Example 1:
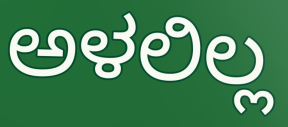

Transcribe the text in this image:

ಅಳಲಿಲ್ಲ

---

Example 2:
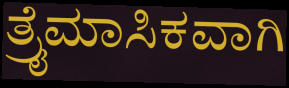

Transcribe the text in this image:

ತ್ರೈಮಾಸಿಕವಾಗಿ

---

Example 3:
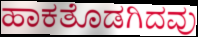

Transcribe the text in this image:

ಹಾಕತೊಡಗಿದವು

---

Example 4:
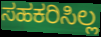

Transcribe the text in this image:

ಸಹಕರಿಸಿಲ್ಲ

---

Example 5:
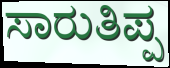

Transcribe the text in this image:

ಸಾರುತಿಪ್ಪ